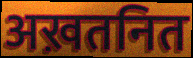
अख़तनित